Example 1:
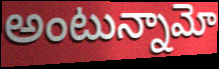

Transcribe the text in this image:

అంటున్నామో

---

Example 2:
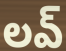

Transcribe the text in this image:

లవ్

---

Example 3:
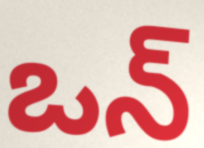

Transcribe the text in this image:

ఒన్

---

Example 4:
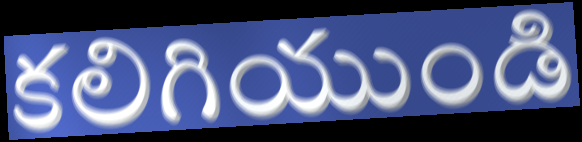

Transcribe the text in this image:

కలిగియుండి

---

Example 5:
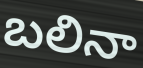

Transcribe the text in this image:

బలినా